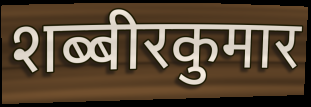
शब्बीरकुमार